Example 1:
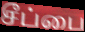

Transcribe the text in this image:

சீப்பை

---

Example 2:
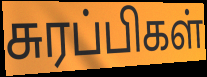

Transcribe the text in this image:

சுரப்பிகள்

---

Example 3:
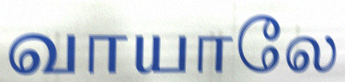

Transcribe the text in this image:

வாயாலே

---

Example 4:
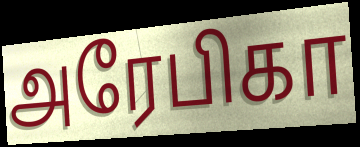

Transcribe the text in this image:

அரேபிகா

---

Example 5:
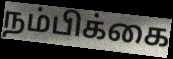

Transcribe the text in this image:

நம்பிக்கை